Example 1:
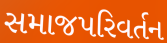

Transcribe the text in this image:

સમાજપરિવર્તન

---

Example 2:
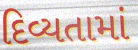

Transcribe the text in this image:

દિવ્યતામાં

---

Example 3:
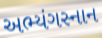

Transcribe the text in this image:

અભ્યંગસ્નાન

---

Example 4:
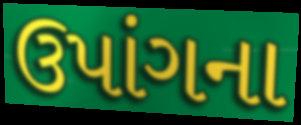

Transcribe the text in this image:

ઉપાંગના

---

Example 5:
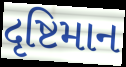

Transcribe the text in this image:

દૃષ્ટિમાન